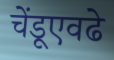
चेंडूएवढे